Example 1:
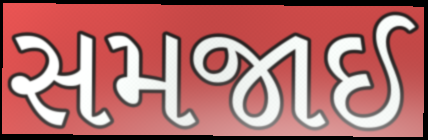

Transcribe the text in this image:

સમજાઈ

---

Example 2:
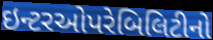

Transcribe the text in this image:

ઇન્ટરઓપરેબિલિટીનો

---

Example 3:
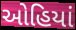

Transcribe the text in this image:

ઓહિયાં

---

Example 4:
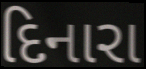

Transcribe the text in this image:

દિનારા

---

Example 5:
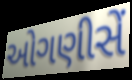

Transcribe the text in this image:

ઓગણીસેં